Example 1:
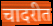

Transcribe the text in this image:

चादरीत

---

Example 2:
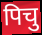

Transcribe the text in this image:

पिचु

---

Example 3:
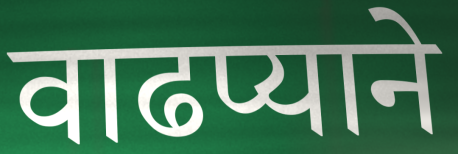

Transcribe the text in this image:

वाढप्याने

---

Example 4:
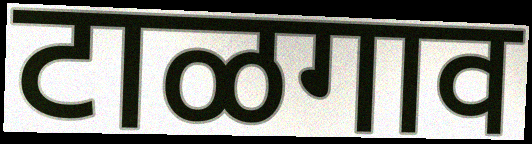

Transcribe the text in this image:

टाळगाव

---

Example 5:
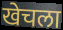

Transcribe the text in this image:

खेचला